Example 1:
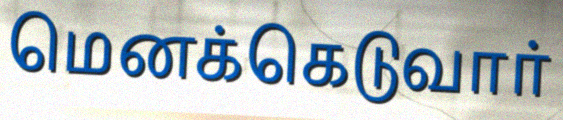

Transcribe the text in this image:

மெனக்கெடுவார்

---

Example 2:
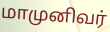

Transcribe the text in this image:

மாமுனிவர்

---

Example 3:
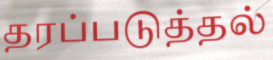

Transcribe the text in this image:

தரப்படுத்தல்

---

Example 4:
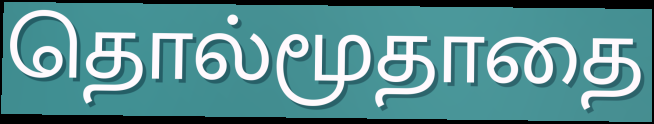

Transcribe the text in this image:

தொல்மூதாதை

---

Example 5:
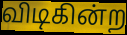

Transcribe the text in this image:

விடிகின்ற